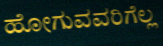
ಹೋಗುವವರಿಗೆಲ್ಲ